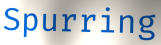
Spurring